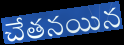
చేతనయిన